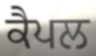
ਕੈਪਲ